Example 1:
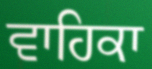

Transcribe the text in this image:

ਵਾਹਿਕਾ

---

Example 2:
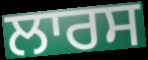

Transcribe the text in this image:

ਲਾਰਸ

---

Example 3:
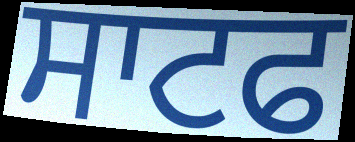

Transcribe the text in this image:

ਸਾਟਫ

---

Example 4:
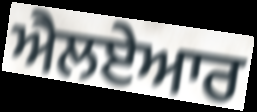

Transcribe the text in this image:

ਐਲਏਆਰ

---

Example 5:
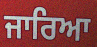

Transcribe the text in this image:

ਜਾਰਿਆ